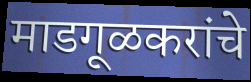
माडगूळकरांचे